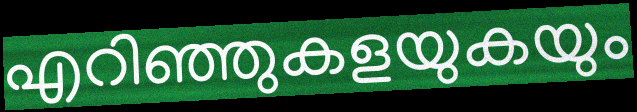
എറിഞ്ഞുകളയുകയും